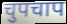
चुपचाप